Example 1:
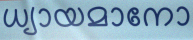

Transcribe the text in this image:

ധ്യായമാനോ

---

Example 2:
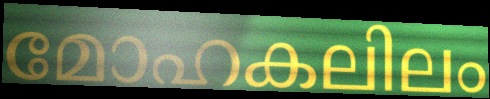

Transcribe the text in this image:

മോഹകലിലം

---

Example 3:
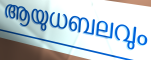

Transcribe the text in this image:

ആയുധബലവും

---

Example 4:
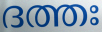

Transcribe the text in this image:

ദത്തഃ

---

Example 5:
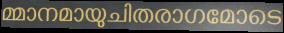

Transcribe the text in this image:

മ്മാനമായുചിതരാഗമോടെ